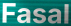
Fasal